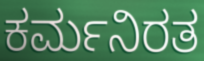
ಕರ್ಮನಿರತ